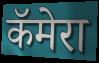
कॅमेरा